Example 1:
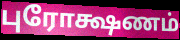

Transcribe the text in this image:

புரோக்ஷணம்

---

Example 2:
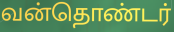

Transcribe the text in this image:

வன்தொண்டர்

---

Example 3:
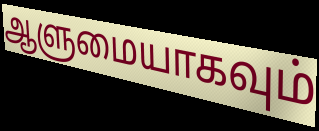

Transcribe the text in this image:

ஆளுமையாகவும்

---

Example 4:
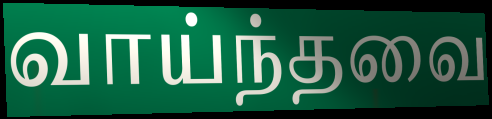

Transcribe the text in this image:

வாய்ந்தவை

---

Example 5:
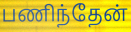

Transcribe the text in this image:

பணிந்தேன்